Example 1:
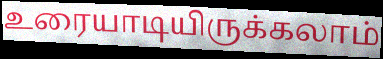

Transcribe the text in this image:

உரையாடியிருக்கலாம்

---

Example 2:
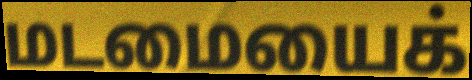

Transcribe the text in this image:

மடமையைக்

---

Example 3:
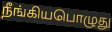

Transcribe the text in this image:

நீங்கியபொழுது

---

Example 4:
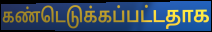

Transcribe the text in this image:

கண்டெடுக்கப்பட்டதாக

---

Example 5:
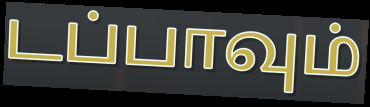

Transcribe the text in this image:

டப்பாவும்